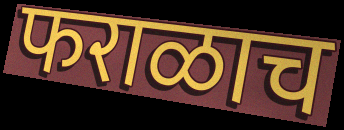
फराळाच